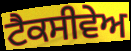
ਟੈਕਸੀਵੇਅ